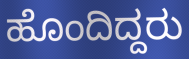
ಹೊಂದಿದ್ದರು